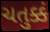
ચતુક્કં